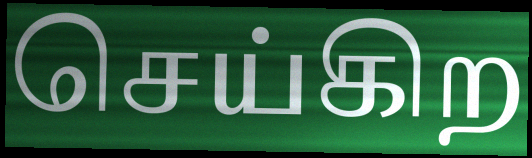
செய்கிற